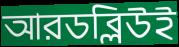
আরডব্লিউই